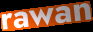
rawan